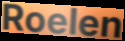
Roelen